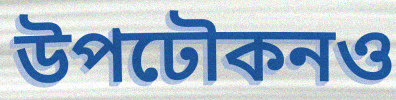
উপঢৌকনও